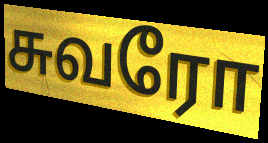
சுவரோ